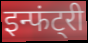
इन्फंट्री